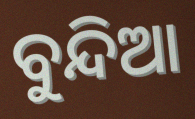
ବୁନ୍ଦିଆ